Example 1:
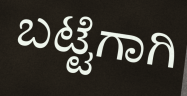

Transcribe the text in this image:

ಬಟ್ಟೆಗಾಗಿ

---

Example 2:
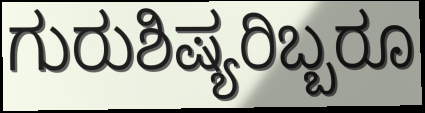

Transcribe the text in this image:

ಗುರುಶಿಷ್ಯರಿಬ್ಬರೂ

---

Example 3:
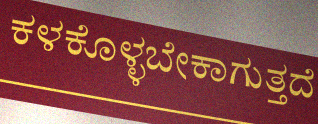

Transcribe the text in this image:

ಕಳಕೊಳ್ಳಬೇಕಾಗುತ್ತದೆ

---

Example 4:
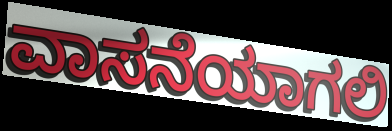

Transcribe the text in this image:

ವಾಸನೆಯಾಗಲಿ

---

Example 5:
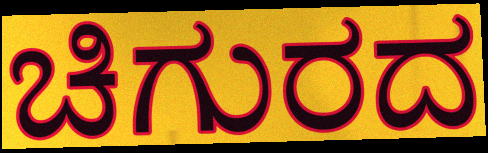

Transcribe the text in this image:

ಚಿಗುರದ